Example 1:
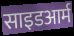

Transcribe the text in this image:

साइडआर्म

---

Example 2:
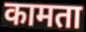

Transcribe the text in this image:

कामता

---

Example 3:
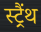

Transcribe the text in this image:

स्ट्रैंथ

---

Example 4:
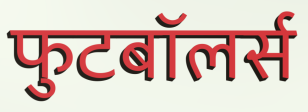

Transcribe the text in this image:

फुटबॉलर्स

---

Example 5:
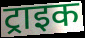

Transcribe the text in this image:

ट्राइक